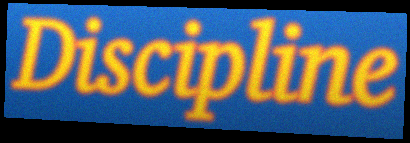
Discipline